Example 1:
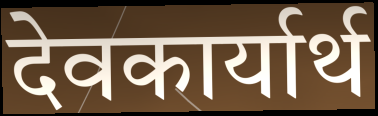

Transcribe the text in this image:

देवकार्यार्थ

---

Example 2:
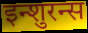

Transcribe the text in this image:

इन्शुरन्स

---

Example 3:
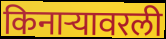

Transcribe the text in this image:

किनाऱ्यावरली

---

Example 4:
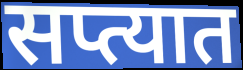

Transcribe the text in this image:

सप्त्यात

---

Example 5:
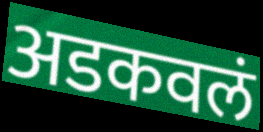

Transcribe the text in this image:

अडकवलं